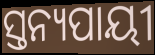
ସ୍ତନ୍ୟପାୟୀ